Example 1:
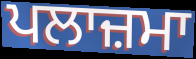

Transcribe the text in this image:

ਪਲਾਜ਼ਮਾ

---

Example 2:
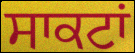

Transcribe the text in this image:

ਸਾਕਟਾਂ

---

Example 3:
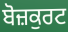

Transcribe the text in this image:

ਬੋਜ਼ਕੁਰਟ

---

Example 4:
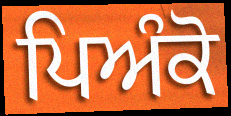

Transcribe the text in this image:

ਪਿਅੰਕੋ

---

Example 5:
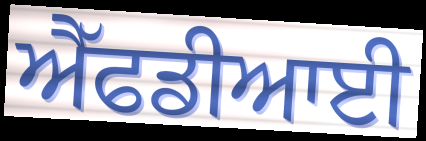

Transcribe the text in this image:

ਐੱਫਡੀਆਈ